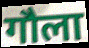
गौला